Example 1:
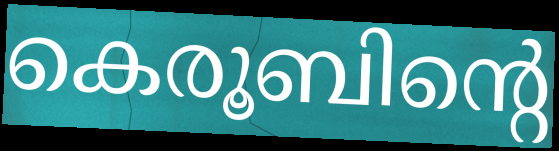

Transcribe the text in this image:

കെരൂബിന്റെ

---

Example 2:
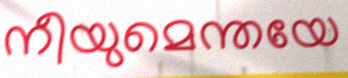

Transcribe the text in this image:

നീയുമെന്തയേ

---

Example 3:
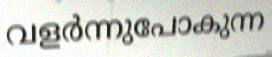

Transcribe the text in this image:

വളർന്നുപോകുന്ന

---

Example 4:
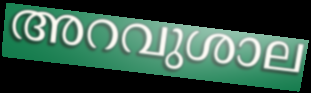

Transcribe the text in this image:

അറവുശാല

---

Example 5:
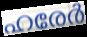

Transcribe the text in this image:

ഹരേർ